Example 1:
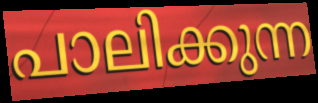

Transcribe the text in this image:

പാലിക്കുന്ന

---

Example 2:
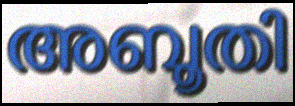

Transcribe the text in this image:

അബൂതി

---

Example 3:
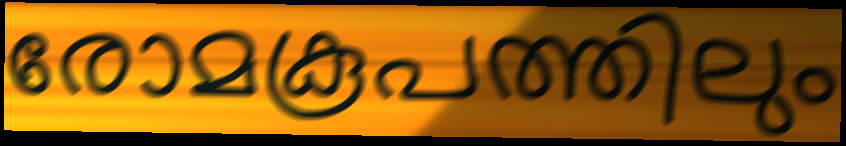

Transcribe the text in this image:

രോമകൂപത്തിലും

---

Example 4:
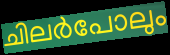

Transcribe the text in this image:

ചിലർപോലും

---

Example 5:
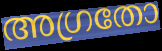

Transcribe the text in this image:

അഗ്രതോ